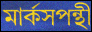
মার্কসপন্থী